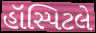
હૉસ્પિટલે